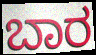
ಬಾರ